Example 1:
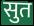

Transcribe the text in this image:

सुत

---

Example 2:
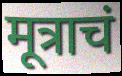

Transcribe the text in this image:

मूत्राचं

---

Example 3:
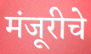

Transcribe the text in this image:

मंजूरीचे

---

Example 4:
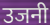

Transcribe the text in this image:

उजनी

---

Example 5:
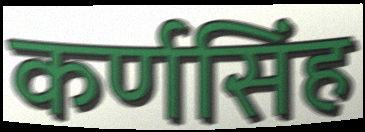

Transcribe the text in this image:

कर्णसिंह